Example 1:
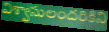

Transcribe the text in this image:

విశ్వాసులందరికిని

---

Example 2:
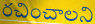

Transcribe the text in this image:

రచించాలని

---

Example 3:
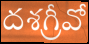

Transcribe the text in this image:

దశగ్రీవో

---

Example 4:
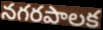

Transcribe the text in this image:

నగరపాలక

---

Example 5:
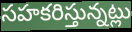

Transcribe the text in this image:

సహకరిస్తున్నట్లు